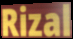
Rizal